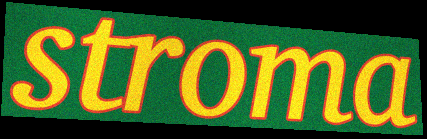
stroma